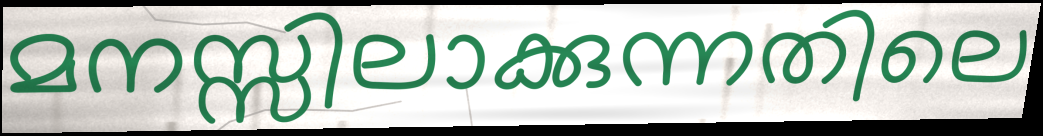
മനസ്സിലാക്കുന്നതിലെ